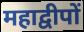
महाद्वीपों